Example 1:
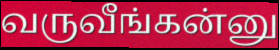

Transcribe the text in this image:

வருவீங்கன்னு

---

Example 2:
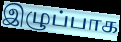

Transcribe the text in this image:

இழுப்பாக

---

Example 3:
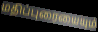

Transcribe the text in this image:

மதிப்புரையையும்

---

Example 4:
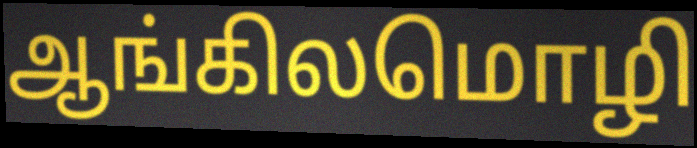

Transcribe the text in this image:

ஆங்கிலமொழி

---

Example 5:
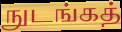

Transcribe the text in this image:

நுடங்கத்